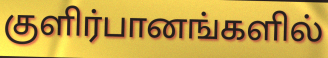
குளிர்பானங்களில்